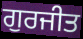
ਗੁਰਜੀਤ